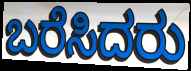
ಬರೆಸಿದರು